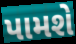
પામશે